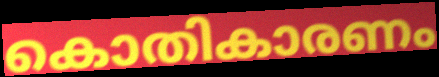
കൊതികാരണം